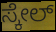
ಸ್ಕೇಲ್